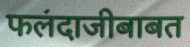
फलंदाजीबाबत